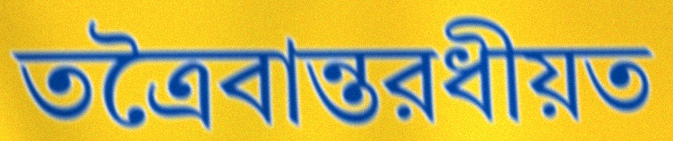
তত্রৈবান্তরধীয়ত